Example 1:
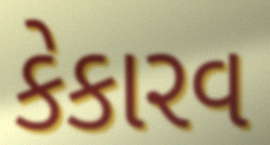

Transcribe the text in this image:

કેકારવ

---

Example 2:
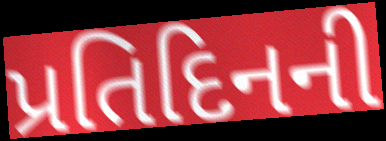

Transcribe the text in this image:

પ્રતિદિનની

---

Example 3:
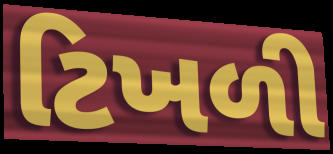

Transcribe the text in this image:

ટિખળી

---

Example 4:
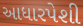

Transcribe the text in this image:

આધારપેશી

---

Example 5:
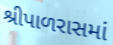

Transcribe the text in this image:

શ્રીપાળરાસમાં